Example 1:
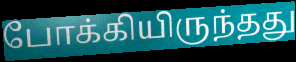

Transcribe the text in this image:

போக்கியிருந்தது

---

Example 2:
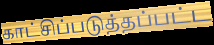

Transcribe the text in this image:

காட்சிப்படுத்தப்பட்ட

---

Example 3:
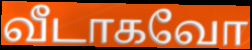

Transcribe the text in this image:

வீடாகவோ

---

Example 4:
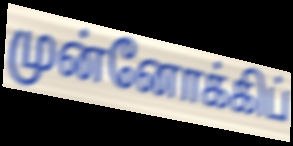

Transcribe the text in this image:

முன்னோக்கிப்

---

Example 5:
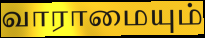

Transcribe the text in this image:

வாராமையும்